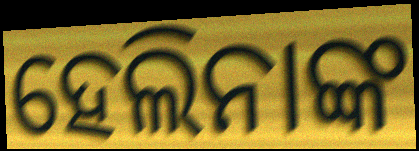
ହେଲିନାଙ୍କ